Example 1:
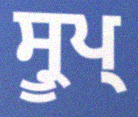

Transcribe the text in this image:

ਸ੍ਰੂਪ੍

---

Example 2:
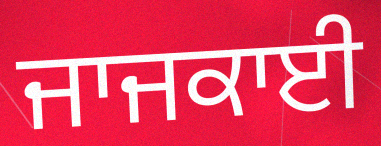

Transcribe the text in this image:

ਜਾਜਕਾਈ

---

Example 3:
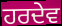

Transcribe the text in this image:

ਹਰਦੇਵ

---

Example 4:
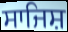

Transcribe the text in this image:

ਸਾਜਿਸ਼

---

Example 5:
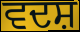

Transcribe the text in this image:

ਵਦਸ਼